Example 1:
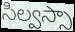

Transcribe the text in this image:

సిల్వస్సా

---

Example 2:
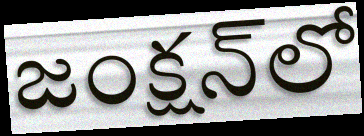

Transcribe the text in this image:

జంక్షన్‌లో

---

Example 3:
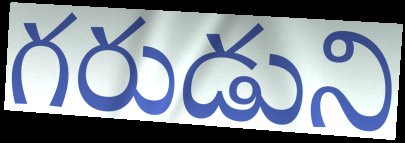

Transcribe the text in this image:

గరుడుని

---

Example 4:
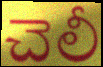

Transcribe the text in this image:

చెలీ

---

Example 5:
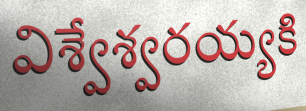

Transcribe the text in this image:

విశ్వేశ్వరయ్యకి